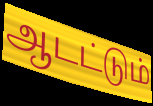
ஆடட்டும்